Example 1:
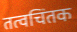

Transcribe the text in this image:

तत्वचिंतक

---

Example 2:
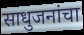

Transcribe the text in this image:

साधुजनांचा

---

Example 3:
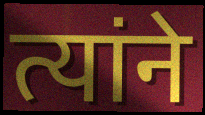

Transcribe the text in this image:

त्यांने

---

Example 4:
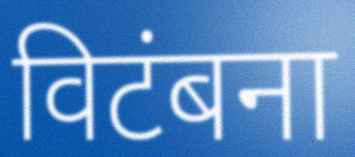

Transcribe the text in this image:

विटंबना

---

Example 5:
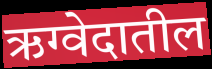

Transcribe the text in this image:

ऋग्वेदातील